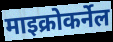
माइक्रोकर्नेल